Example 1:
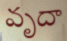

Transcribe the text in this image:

వృదా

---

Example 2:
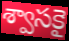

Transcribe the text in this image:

శ్వాసకై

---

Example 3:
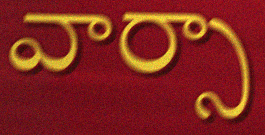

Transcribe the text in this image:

వార్సా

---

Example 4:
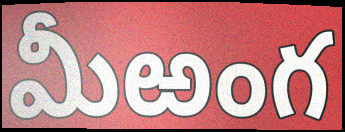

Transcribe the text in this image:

మీఱంగ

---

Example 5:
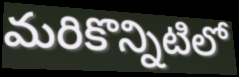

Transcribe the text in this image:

మరికొన్నిటిలో